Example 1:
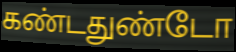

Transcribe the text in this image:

கண்டதுண்டோ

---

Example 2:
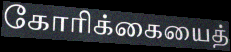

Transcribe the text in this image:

கோரிக்கையைத்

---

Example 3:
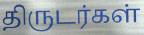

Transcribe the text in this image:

திருடர்கள்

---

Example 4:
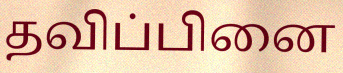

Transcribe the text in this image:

தவிப்பினை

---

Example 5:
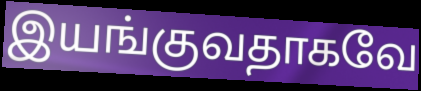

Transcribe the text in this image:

இயங்குவதாகவே